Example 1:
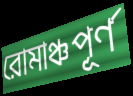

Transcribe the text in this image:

রোমাঞ্চপূর্ণ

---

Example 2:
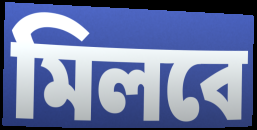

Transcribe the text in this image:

মিলবে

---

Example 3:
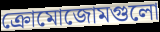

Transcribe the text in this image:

ক্রোমোজোমগুলো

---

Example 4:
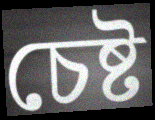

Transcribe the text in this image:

চেষ্ট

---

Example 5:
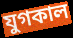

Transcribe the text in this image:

যুগকাল